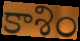
కాశిం